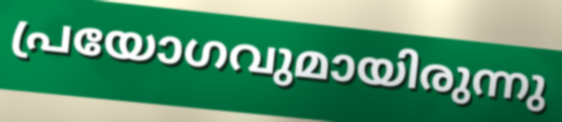
പ്രയോഗവുമായിരുന്നു